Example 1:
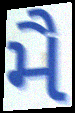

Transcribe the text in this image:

મૈ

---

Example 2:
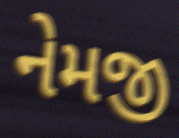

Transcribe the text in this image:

નેમજી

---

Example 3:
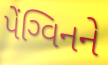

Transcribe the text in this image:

પેંગ્વિનને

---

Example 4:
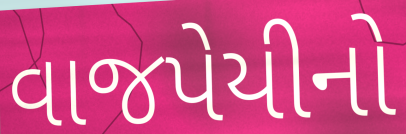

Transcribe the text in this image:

વાજપેયીનો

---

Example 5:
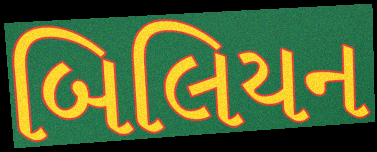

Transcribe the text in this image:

બિલિયન